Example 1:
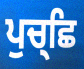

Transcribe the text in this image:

ਪੁਚ੍ਛਿ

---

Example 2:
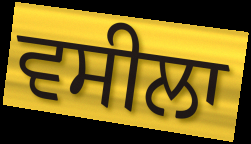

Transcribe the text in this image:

ਵਸੀਲਾ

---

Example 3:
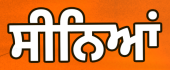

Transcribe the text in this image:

ਸੀਨਿਆਂ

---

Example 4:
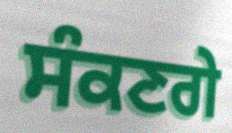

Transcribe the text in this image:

ਸੰਕਣਗੇ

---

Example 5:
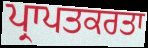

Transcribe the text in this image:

ਪ੍ਰਾਪਤਕਰਤਾ